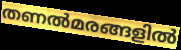
തണൽമരങ്ങളിൽ